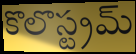
కొలొస్ట్రమ్